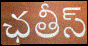
ఛతీస్